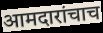
आमदारांचाच